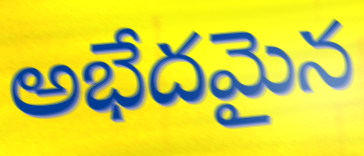
అభేదమైన